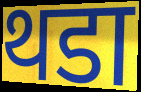
थडा